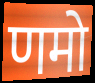
णमो